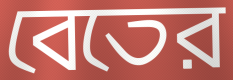
বেতের